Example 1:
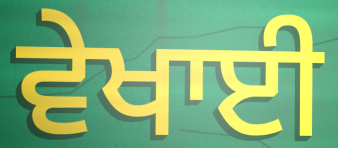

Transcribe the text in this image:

ਵੇਖਾਈ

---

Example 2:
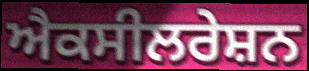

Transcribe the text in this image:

ਐਕਸੀਲਰੇਸ਼ਨ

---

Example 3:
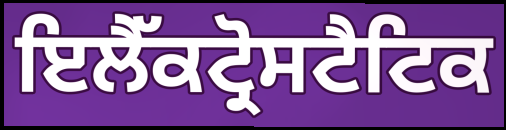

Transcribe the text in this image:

ਇਲੈੱਕਟ੍ਰੋਸਟੈਟਿਕ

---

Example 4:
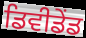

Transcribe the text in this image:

ਡਿਵੀਡੇਂਡ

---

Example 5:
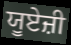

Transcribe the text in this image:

ਯੂਏਜ਼ੀ